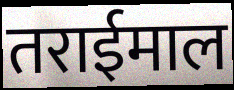
तराईमाल